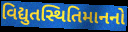
વિદ્યુતસ્થિતિમાનનો